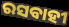
ରସବାହୀ